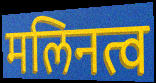
मलिनत्व